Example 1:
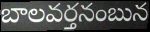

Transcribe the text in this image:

బాలవర్తనంబున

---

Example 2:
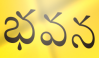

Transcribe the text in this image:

భవన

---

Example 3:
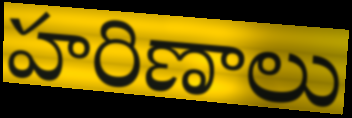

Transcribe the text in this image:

హరిణాలు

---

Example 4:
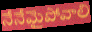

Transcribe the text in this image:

నేనేమైపోవాలి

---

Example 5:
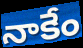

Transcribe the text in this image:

నాకేం